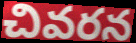
చివరన